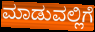
ಮಾಡುವಲ್ಲಿಗೆ